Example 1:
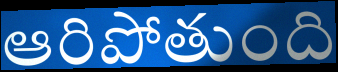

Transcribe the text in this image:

ఆరిపోతుంది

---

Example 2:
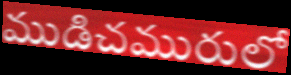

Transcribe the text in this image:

ముడిచమురులో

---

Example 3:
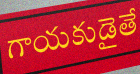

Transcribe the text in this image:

గాయకుడైతే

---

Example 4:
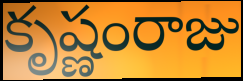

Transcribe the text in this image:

కృష్ణంరాజు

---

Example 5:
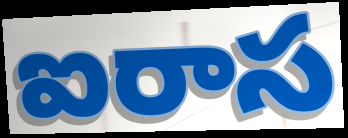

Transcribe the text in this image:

ఐరాస